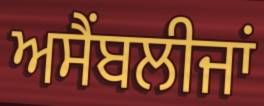
ਅਸੈਂਬਲੀਜਾਂ